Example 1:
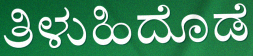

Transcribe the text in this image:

ತಿಳುಹಿದೊಡೆ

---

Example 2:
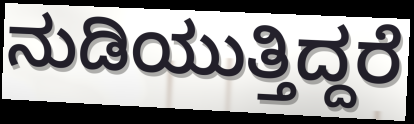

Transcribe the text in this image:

ನುಡಿಯುತ್ತಿದ್ದರೆ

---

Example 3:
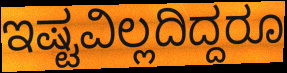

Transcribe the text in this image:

ಇಷ್ಟವಿಲ್ಲದಿದ್ದರೂ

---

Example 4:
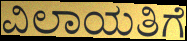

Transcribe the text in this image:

ವಿಲಾಯತಿಗೆ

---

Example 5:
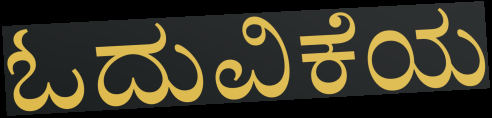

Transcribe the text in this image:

ಓದುವಿಕೆಯ